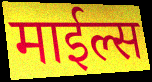
माईल्स